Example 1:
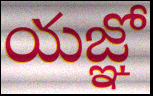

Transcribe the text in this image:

యజ్ఞో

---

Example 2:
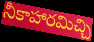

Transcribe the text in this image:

నీకాహారమిచ్చి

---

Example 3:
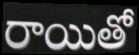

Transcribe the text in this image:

రాయితో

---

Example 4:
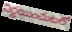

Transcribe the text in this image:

నిర్ణయించుటలో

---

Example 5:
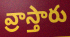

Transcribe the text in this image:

వ్రాస్తారు